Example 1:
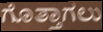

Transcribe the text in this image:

ಗೊತ್ತಾಗಲು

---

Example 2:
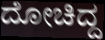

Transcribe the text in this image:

ದೋಚಿದ್ದ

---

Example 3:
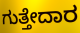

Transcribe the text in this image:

ಗುತ್ತೇದಾರ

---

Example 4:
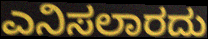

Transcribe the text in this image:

ಎನಿಸಲಾರದು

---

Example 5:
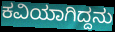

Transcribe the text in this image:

ಕವಿಯಾಗಿದ್ದನು